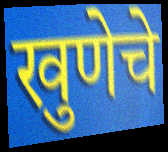
खुणेचे